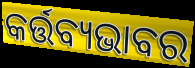
କର୍ତ୍ତବ୍ୟଭାବର